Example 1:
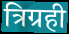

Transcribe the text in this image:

त्रिग्रही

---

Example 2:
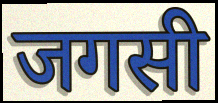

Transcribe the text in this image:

जगसी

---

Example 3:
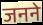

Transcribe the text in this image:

जनने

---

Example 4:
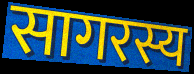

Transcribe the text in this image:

सागरस्य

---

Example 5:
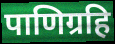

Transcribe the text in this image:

पाणिग्रहि